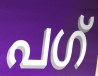
പഗ്